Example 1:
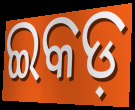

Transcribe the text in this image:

ଇକଡ଼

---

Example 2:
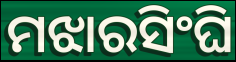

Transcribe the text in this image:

ମଝାରସିଂଘି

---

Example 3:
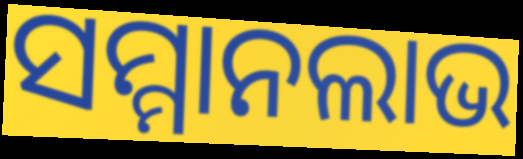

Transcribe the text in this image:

ସମ୍ମାନଲାଭ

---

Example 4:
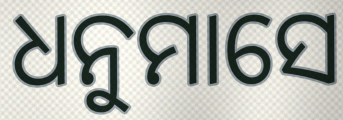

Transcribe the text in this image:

ଧନୁମାସେ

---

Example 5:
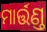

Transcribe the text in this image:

ମାର୍ତ୍ତଣ୍ଡ